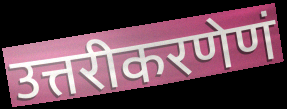
उत्तरीकरणेणं